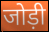
जोड़ी